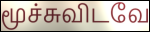
மூச்சுவிடவே